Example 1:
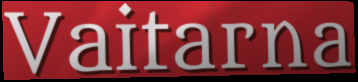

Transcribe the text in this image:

Vaitarna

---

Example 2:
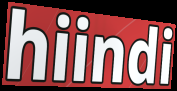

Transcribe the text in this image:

hiindi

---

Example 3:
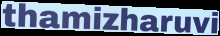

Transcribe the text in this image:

thamizharuvi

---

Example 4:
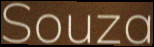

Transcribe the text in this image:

Souza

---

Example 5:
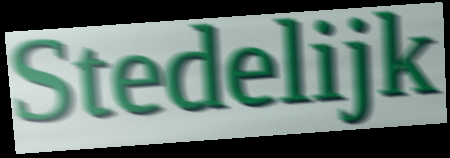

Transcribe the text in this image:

Stedelijk